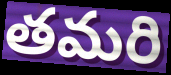
తమరి